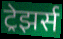
ट्रेझर्स